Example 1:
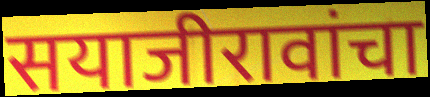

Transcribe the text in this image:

सयाजीरावांचा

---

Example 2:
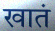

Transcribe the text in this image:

खातं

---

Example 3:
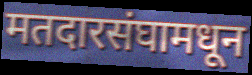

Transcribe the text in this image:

मतदारसंघामधून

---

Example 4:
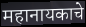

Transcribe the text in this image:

महानायकाचे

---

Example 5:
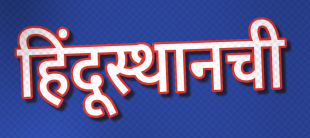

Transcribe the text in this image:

हिंदूस्थानची